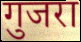
गुजरा